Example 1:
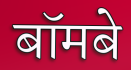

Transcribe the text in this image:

बॉमबे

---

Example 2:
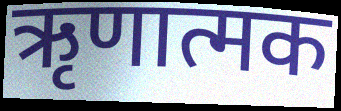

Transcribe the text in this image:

ऋृणात्मक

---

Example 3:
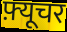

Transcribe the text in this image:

फ़्यूचर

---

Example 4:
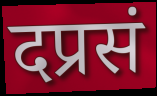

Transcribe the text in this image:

दप्रसं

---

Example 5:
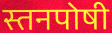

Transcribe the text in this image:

स्तनपोषी